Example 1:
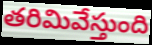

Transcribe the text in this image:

తరిమివేస్తుంది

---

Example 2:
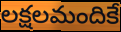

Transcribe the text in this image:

లక్షలమందికే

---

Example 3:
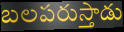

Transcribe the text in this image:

బలపరుస్తాడు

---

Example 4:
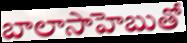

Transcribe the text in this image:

బాలాసాహెబుతో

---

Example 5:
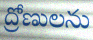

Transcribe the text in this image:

ద్రోణులను